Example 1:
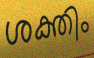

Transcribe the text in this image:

ശക്തിം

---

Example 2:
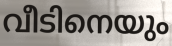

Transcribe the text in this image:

വീടിനെയും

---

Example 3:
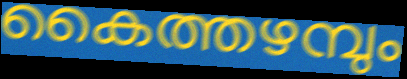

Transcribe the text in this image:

കൈത്തഴമ്പും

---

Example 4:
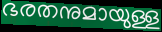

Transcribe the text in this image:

ഭരതനുമായുള്ള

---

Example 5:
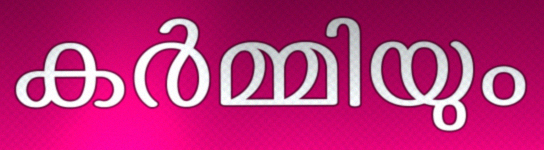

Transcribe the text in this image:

കർമ്മിയും